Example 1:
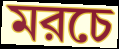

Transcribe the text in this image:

মরচে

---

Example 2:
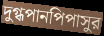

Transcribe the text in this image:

দুগ্ধপানপিপাসুর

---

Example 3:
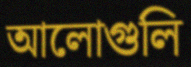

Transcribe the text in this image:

আলোগুলি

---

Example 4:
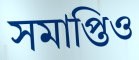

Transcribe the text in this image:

সমাপ্তিও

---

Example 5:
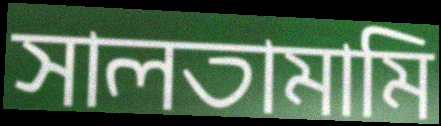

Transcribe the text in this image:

সালতামামি